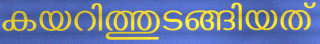
കയറിത്തുടങ്ങിയത്